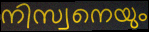
നിസ്വനെയും